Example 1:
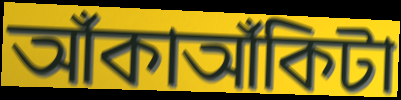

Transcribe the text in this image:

আঁকাআঁকিটা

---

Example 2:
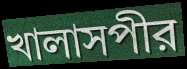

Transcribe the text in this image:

খালাসপীর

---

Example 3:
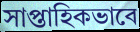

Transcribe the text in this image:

সাপ্তাহিকভাবে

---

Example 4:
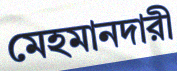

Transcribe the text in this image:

মেহমানদারী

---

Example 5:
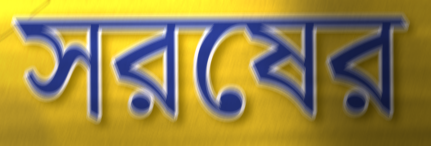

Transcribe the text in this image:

সরষের